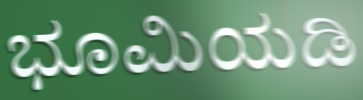
ಭೂಮಿಯಡಿ